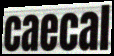
caecal